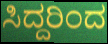
ಸಿದ್ದರಿಂದ